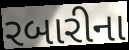
રબારીના